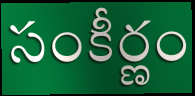
సంకీర్ణం